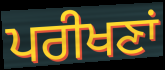
ਪਰੀਖਣਾਂ